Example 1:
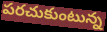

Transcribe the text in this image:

పరచుకుంటున్న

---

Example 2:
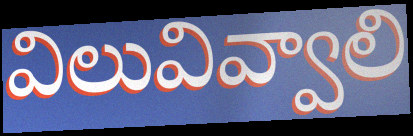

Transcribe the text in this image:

విలువివ్వాలి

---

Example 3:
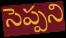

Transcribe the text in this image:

సెప్పని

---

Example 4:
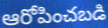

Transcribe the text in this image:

ఆరోపించబడి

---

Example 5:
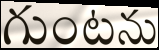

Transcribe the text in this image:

గుంటను